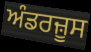
ਅੰਡਰਜ਼ੂਸ